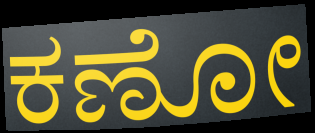
ಕಣೋ